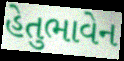
હેતુભાવેન